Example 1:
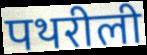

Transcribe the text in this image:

पथरीली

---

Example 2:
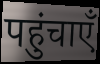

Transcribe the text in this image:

पहुंचाएँ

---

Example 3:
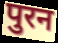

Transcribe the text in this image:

पुरन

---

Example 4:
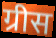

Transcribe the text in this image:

ग्रीस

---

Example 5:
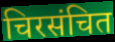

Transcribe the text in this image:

चिरसंचित